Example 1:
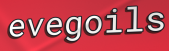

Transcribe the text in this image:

evegoils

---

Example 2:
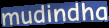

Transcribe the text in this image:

mudindha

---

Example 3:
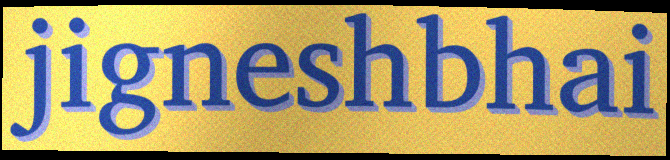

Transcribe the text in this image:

jigneshbhai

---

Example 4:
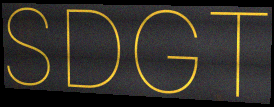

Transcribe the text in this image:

SDGT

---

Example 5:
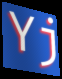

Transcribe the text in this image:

Yj